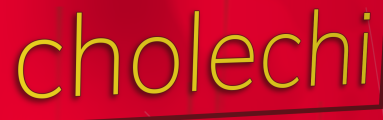
cholechi